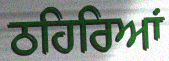
ਠਹਿਰਿਆਂ